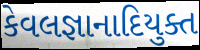
કેવલજ્ઞાનાદિયુક્ત